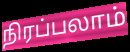
நிரப்பலாம்